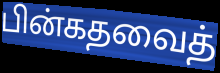
பின்கதவைத்